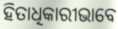
ହିତାଧିକାରୀଭାବେ